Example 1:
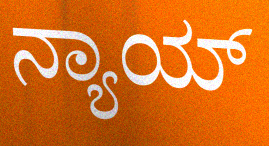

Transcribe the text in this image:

ನ್ಯಾಯ್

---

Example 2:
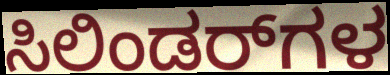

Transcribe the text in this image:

ಸಿಲಿಂಡರ್‌ಗಳ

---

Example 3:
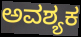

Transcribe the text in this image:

ಅವಶ್ಯಕ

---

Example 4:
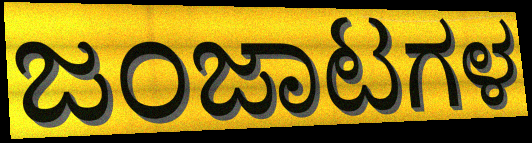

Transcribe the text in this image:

ಜಂಜಾಟಗಳ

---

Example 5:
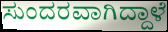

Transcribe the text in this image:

ಸುಂದರವಾಗಿದ್ದಾಳೆ